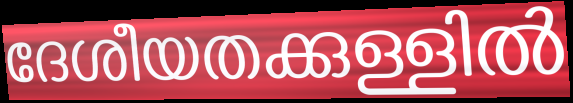
ദേശീയതക്കുള്ളിൽ